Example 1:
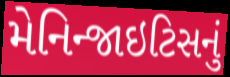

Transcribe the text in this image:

મેનિન્જાઇટિસનું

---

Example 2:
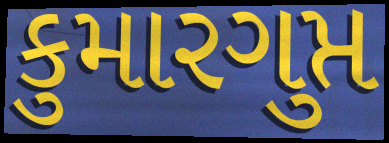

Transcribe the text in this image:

કુમારગુપ્ત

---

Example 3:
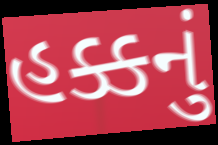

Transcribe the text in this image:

હક્કનું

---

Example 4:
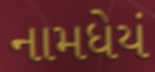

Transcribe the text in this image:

નામધેયં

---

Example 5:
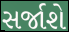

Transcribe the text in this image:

સર્જાશે